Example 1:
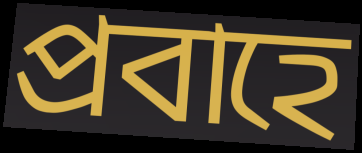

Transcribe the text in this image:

প্রবাহে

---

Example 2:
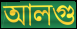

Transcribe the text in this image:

আলগু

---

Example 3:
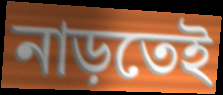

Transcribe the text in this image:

নাড়তেই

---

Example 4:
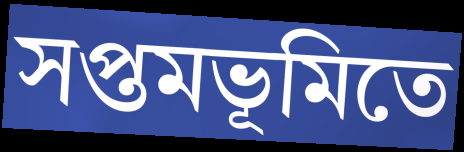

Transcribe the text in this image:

সপ্তমভূমিতে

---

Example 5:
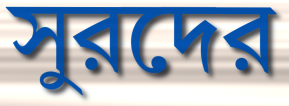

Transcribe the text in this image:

সুরদের